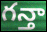
గన్తా